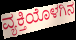
ವ್ಯಕ್ತಿಯೊಳಗಿನ